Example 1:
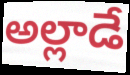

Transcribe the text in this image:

అల్లాడే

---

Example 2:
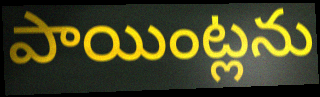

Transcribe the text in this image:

పాయింట్లను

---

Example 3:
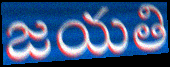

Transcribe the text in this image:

జయతి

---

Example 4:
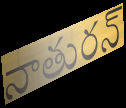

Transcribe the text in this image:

నాతురన్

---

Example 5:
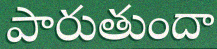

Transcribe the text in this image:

పారుతుందా